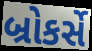
બ્રોકર્સે